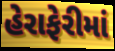
હેરાફેરીમાં